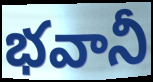
భవానీ